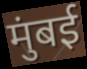
मुंबई